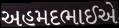
અહમદભાઈએ